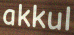
akkul